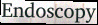
Endoscopy